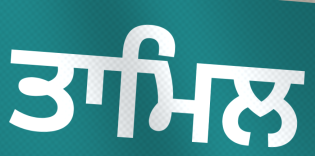
ਤਾਮਿਲ